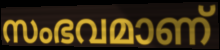
സംഭവമാണ്